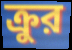
ক্রুর